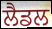
ਲੈਡਲ